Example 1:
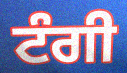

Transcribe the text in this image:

ਟੰਗੀ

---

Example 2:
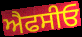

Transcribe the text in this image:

ਐਫਸੀਓ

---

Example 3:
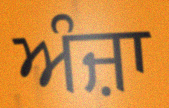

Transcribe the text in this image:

ਅੰਜ਼ਾ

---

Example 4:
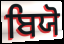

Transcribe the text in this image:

ਬਿਯੋ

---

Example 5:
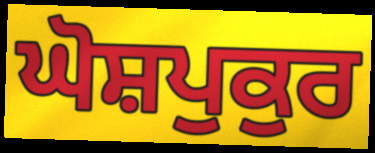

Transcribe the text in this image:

ਘੋਸ਼ਪੁਕੁਰ